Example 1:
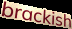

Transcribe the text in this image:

brackish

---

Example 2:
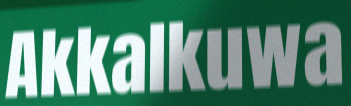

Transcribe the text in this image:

Akkalkuwa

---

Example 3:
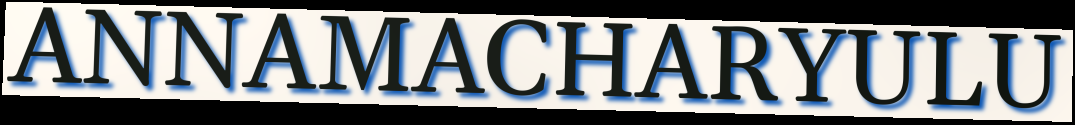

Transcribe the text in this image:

ANNAMACHARYULU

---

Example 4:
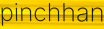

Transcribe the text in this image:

pinchhan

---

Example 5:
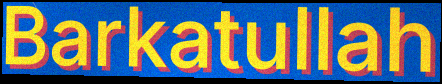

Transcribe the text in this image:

Barkatullah